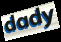
dady